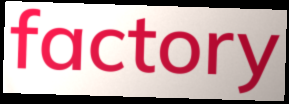
factory